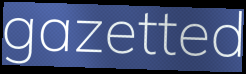
gazetted